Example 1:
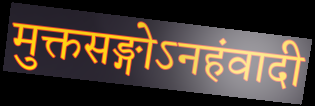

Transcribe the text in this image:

मुक्तसङ्गोऽनहंवादी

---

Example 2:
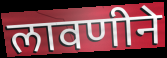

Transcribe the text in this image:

लावणीने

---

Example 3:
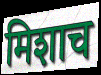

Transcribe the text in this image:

मिशाच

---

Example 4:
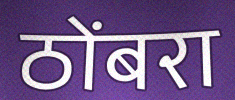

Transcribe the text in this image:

ठोंबरा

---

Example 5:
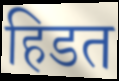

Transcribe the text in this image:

हिडत